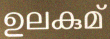
ഉലകുമ്